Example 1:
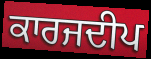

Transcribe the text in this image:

ਕਾਰਜਦੀਪ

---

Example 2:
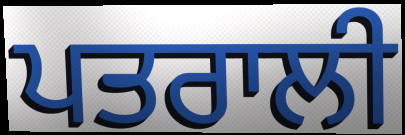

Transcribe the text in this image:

ਪਤਰਾਲੀ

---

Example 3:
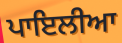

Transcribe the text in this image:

ਪਾਇਲੀਆ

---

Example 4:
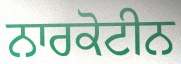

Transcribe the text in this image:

ਨਾਰਕੋਟੀਨ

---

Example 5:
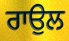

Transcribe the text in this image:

ਰਾਉਲ